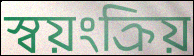
স্বয়ংক্রিয়